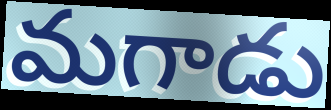
మగాడు